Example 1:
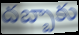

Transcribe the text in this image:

దబ్బాకు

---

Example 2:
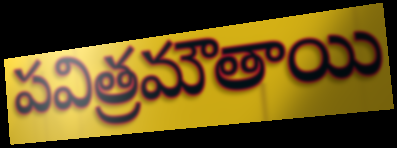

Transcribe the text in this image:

పవిత్రమౌతాయి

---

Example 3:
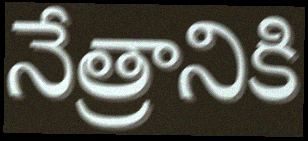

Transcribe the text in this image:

నేత్రానికి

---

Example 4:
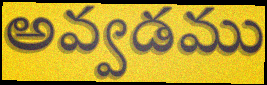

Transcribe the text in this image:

అవ్వడము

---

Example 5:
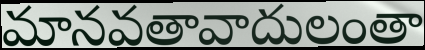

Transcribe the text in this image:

మానవతావాదులంతా